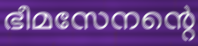
ഭീമസേനന്റെ